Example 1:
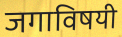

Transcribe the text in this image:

जगाविषयी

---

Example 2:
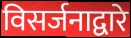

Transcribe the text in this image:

विसर्जनाद्वारे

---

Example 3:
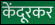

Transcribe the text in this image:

केंदूरकर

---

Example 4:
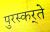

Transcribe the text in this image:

पुरस्कर्ते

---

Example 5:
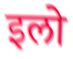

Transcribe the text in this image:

इलो